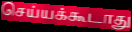
செய்யக்கூடாது